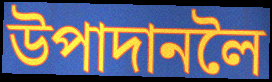
উপাদানলৈ